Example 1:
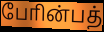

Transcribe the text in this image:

பேரின்பத்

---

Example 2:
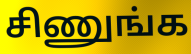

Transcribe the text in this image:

சிணுங்க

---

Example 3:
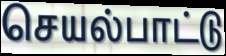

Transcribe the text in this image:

செயல்பாட்டு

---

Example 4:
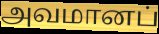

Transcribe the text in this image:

அவமானப்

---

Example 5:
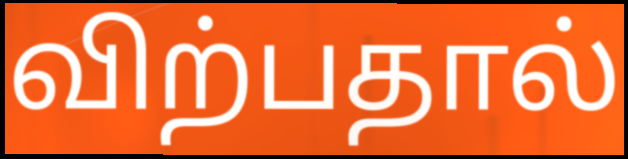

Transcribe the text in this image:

விற்பதால்